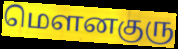
மௌனகுரு